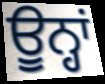
ਊਨ੍ਹਾਂ